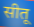
सीतू